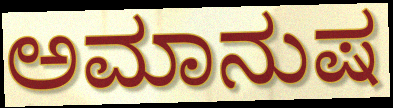
ಅಮಾನುಷ